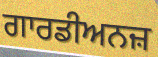
ਗਾਰਡੀਅਨਜ਼